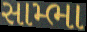
સામ્ભા